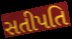
સતીપતિ